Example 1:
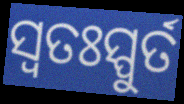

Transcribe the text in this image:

ସ୍ୱତଃସ୍ପୁର୍ତ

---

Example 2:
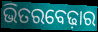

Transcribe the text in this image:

ଭିତରବେଢ଼ାର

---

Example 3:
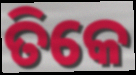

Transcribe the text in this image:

ତିକେ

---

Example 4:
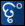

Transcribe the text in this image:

ତୃଂ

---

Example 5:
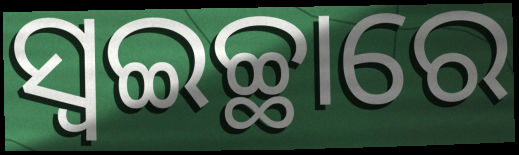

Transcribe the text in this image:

ସ୍ୱଇଚ୍ଛାରେ